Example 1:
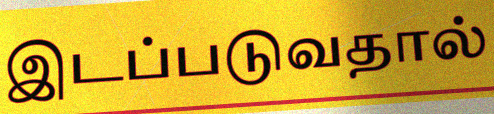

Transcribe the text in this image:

இடப்படுவதால்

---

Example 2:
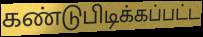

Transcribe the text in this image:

கண்டுபிடிக்கப்பட்ட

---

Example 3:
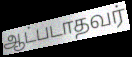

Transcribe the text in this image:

ஆட்படாதவர்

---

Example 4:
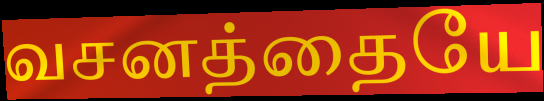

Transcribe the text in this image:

வசனத்தையே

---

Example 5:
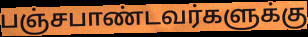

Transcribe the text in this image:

பஞ்சபாண்டவர்களுக்கு